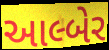
આલ્બેર